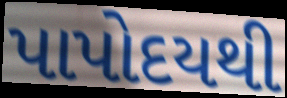
પાપોદયથી